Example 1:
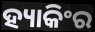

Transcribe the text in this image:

ହ୍ୟାକିଂର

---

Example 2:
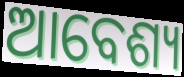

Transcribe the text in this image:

ଆବେଶ୍ୟ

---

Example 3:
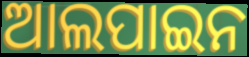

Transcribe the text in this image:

ଆଲପାଇନ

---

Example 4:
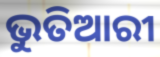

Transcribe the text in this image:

ଭୁତିଆରୀ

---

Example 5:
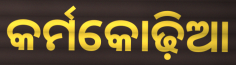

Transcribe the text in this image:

କର୍ମକୋଢ଼ିଆ